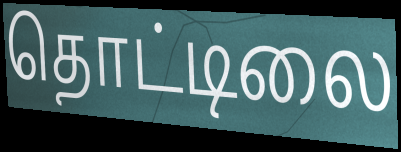
தொட்டிலை